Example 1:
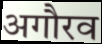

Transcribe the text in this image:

अगौरव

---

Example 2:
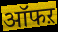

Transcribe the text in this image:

ऑफऱ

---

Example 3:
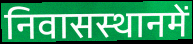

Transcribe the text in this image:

निवासस्थानमें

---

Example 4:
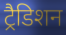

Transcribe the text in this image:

ट्रैडिशन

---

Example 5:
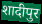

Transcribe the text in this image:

शादीपुर